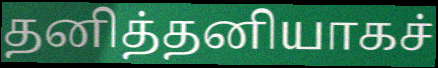
தனித்தனியாகச்